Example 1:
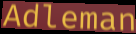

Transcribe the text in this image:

Adleman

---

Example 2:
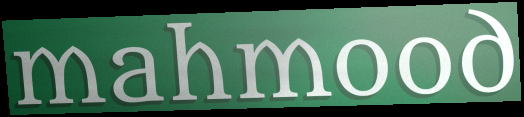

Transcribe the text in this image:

mahmood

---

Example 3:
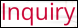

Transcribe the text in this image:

Inquiry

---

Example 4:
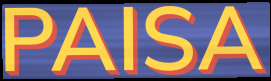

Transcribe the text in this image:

PAISA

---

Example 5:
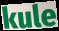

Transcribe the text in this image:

kule